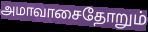
அமாவாசைதோறும்